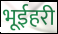
भूईहरी